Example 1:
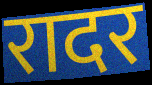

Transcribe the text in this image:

रादर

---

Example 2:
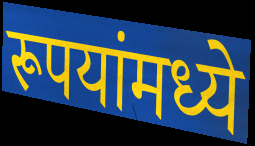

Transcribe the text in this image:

रूपयांमध्ये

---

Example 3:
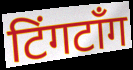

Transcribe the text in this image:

टिंगटॉंग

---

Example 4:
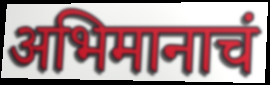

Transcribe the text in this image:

अभिमानाचं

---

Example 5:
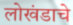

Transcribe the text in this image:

लोखंडाचे